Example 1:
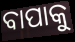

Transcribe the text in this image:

ବାପାକୁ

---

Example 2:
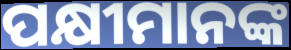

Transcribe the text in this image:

ପକ୍ଷୀମାନଙ୍କ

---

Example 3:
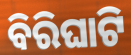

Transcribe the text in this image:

ବିରିଘାଟି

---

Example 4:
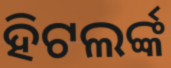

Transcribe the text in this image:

ହିଟଲର୍ଙ୍କ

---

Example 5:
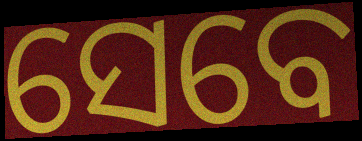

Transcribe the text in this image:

ସେବେ